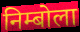
निम्बोला